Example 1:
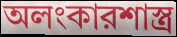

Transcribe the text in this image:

অলংকারশাস্ত্র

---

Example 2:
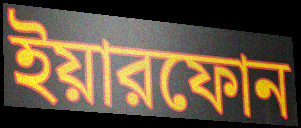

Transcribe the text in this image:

ইয়ারফোন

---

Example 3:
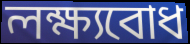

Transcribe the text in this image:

লক্ষ্যবোধ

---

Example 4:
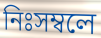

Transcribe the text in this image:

নিঃসম্বলে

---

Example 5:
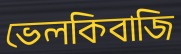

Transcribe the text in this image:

ভেলকিবাজি